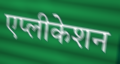
एप्लीकेशन